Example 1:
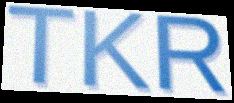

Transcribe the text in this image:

TKR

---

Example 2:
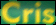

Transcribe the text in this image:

Cris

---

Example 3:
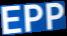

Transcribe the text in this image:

EPP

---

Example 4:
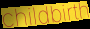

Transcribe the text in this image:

childbirth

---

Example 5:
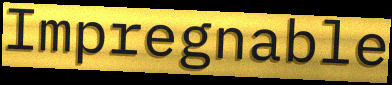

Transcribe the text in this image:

Impregnable